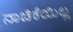
ನಾಚಿಕೆಯಿಲ್ಲ